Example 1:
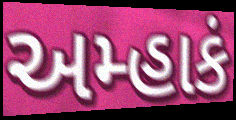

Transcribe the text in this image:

અમ્હાકં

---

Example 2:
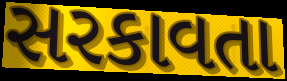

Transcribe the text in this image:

સરકાવતા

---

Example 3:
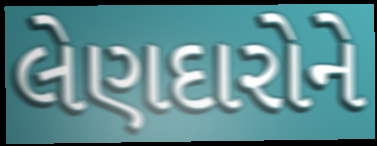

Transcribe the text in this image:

લેણદારોને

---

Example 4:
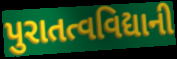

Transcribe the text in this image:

પુરાતત્વવિદ્યાની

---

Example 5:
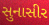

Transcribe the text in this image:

સુનાસીર